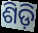
ଶିଡ଼ି